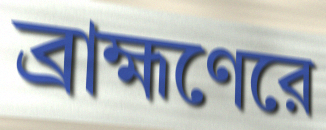
ব্রাহ্মণেরে